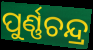
ପୁର୍ଣ୍ଣଚନ୍ଦ୍ର